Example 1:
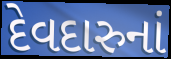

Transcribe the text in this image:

દેવદારુનાં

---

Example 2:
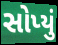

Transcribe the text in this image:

સોપ્યું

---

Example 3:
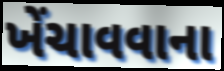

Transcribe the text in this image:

ખેંચાવવાના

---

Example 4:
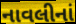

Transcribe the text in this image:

નાવલીનાં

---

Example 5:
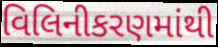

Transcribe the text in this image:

વિલિનીકરણમાંથી